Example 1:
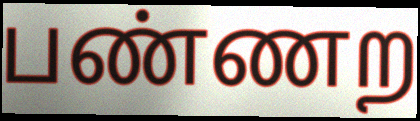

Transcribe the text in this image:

பண்ணற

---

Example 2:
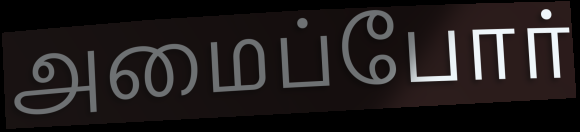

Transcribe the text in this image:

அமைப்போர்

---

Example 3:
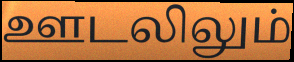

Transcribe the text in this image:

ஊடலிலும்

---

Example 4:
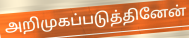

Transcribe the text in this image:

அறிமுகப்படுத்தினேன்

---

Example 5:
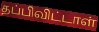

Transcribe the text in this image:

தப்பிவிட்டாள்